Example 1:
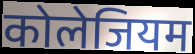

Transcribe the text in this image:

कोलेजियम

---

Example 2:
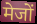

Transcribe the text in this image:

मेजों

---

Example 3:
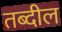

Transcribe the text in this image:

तब्‍दील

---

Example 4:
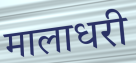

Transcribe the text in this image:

मालाधरी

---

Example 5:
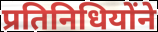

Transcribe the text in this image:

प्रतिनिधियोंने